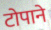
टोपाने